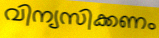
വിന്യസിക്കണം